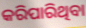
କରିପାରିଥିବା